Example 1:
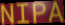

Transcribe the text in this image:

NIPA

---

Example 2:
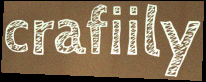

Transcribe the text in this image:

crafiily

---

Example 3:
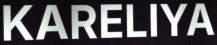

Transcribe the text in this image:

KARELIYA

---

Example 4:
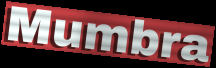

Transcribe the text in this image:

Mumbra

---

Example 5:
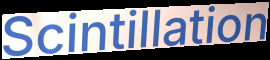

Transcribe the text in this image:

Scintillation